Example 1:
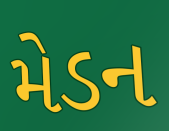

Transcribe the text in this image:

મેડન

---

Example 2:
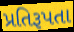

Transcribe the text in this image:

પ્રતિરૂપતા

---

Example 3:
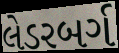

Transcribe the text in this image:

લેડરબર્ગ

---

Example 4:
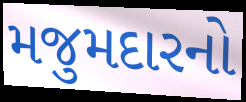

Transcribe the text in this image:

મજુમદારનો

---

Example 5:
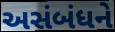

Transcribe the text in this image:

અસંબંધને